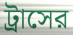
ট্রাসের